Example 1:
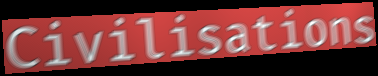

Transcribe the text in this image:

Civilisations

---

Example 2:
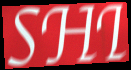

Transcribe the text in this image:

SHI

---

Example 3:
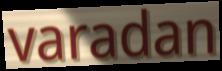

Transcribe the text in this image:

varadan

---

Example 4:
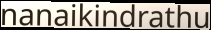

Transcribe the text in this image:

nanaikindrathu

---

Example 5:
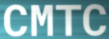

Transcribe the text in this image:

CMTC